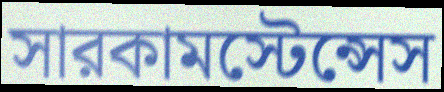
সারকামস্টেন্সেস